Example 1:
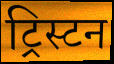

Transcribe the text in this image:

ट्रिस्टन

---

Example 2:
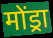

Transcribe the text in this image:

मोंड्रा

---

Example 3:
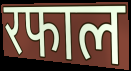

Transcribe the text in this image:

रफाल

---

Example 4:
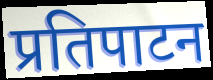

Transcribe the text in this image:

प्रतिपाटन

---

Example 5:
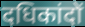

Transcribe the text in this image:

दधिकांदों